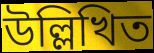
উল্লিখিত